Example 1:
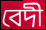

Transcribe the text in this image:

বেদী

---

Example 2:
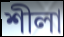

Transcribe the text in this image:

শীলা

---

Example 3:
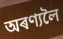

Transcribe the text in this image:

অৰণ্যলৈ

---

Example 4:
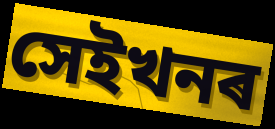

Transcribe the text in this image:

সেইখনৰ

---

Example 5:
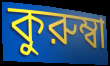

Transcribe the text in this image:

কুৰুম্বা